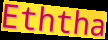
Eththa